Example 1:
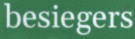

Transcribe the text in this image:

besiegers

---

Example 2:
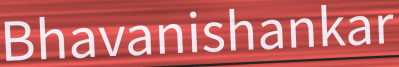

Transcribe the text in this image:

Bhavanishankar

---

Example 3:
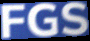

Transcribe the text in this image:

FGS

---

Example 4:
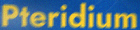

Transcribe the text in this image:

Pteridium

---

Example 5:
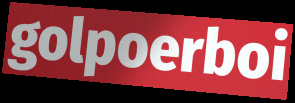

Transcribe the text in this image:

golpoerboi